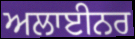
ਅਲਾਈਨਰ